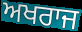
ਅਖਰਾਜ